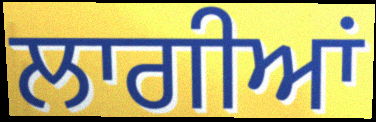
ਲਾਗੀਆਂ